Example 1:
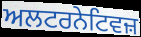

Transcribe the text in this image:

ਅਲਟਰਨੇਟਿਵਜ਼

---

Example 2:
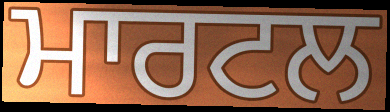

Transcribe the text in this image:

ਮਾਰਟਲ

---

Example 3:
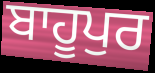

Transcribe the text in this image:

ਬਾਹੂਪੁਰ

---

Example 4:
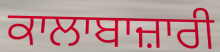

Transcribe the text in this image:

ਕਾਲਾਬਾਜ਼ਾਰੀ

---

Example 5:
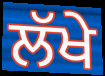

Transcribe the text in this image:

ਲੱਖੇ